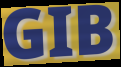
GIB